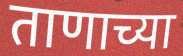
ताणाच्या